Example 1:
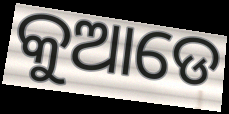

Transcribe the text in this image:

କୁଆଡେ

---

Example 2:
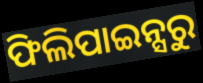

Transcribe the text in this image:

ଫିଲିପାଇନ୍ସରୁ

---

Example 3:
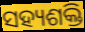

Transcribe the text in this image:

ସହ୍ୟଶକ୍ତି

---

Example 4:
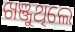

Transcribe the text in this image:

ଖଞ୍ଜୁଥିଲେ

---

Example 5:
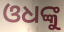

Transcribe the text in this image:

ଓଧଙ୍କୁ